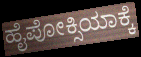
ಹೈಪೋಕ್ಸಿಯಾಕ್ಕೆ